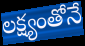
లక్ష్యంతోనే